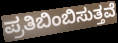
ಪ್ರತಿಬಿಂಬಿಸುತ್ತವೆ